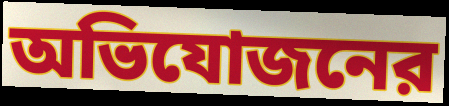
অভিযোজনের